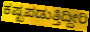
ಕಷ್ಟಪಡುತ್ತಿದ್ದೀರಿ